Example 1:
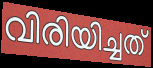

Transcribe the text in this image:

വിരിയിച്ചത്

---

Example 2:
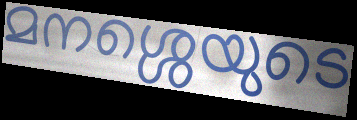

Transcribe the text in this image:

മനശ്ശെയുടെ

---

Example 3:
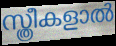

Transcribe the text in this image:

സ്ത്രീകളാൽ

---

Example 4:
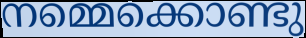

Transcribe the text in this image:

നമ്മെക്കൊണ്ടു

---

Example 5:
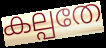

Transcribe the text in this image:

കല്പതേ